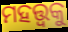
ମହତ୍ତ୍ଵକୁ